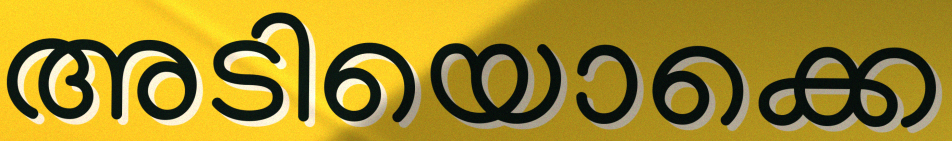
അടിയൊക്കെ